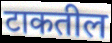
टाकतील